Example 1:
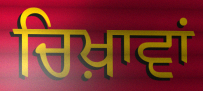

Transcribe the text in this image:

ਚਿਖ਼ਾਵਾਂ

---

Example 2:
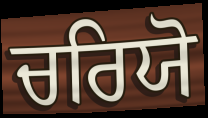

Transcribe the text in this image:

ਚਰਿਯੋ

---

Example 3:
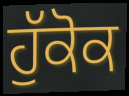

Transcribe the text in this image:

ਹੁੱਕੋਕ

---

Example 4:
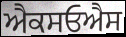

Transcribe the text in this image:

ਐਕਸਓਐਸ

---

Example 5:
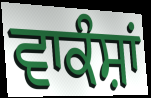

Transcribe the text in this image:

ਵਾਕੰਸ਼ਾਂ